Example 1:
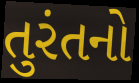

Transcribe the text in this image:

તુરંતનો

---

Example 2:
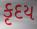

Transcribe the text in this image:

કૃદય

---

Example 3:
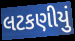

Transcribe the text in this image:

લટકણીયું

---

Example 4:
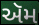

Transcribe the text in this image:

ઍમ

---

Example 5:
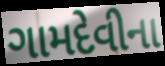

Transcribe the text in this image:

ગામદેવીના